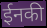
ईनकी